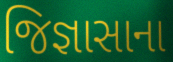
જિજ્ઞાસાના